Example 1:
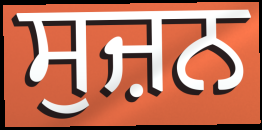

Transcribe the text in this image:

ਸੁਜ਼ਨ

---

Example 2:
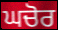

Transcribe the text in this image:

ਘਚੋਰ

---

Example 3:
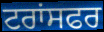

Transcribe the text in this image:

ਟਰਾਂਸਫਰ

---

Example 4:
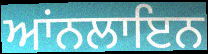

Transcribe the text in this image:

ਆਂਨਲਾਇਨ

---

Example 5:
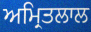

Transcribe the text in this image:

ਅਮ੍ਰਿਤਲਾਲ